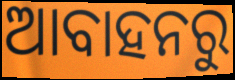
ଆବାହନରୁ